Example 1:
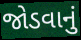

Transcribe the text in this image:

જોડવાનું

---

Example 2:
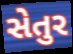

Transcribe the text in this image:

સેતુર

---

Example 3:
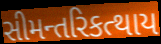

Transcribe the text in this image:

સીમન્તરિકત્થાય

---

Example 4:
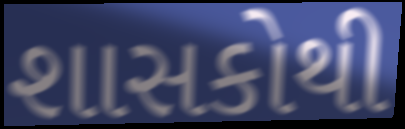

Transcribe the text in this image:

શાસકોથી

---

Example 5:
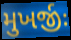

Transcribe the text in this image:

મુખર્જીઃ